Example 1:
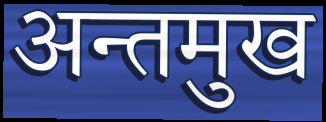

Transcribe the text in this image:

अन्तमुख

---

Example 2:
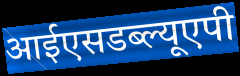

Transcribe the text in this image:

आईएसडब्ल्यूएपी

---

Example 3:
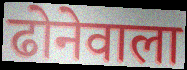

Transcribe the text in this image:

ढोनेवाला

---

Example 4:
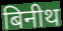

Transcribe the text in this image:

बिनीथ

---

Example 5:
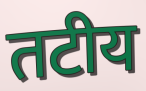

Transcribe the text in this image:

तटीय